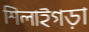
শিলাইগড়া